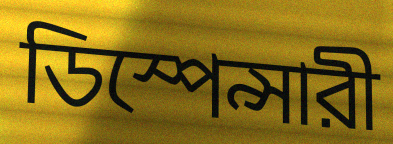
ডিস্পেন্সারী